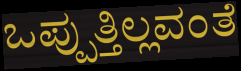
ಒಪ್ಪುತ್ತಿಲ್ಲವಂತೆ